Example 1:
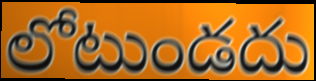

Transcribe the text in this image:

లోటుండదు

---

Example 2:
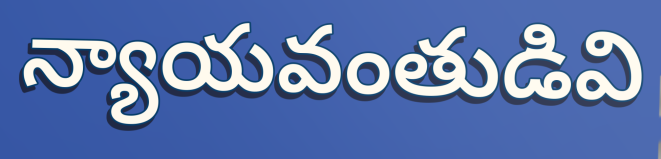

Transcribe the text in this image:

న్యాయవంతుడివి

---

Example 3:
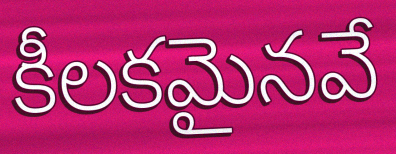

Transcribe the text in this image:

కీలకమైనవే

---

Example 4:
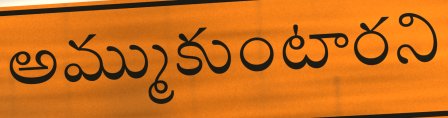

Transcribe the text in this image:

అమ్ముకుంటారని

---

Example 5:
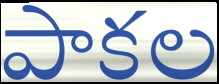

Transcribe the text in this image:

పాకల